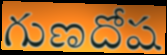
గుణదోష